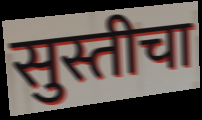
सुस्तीचा